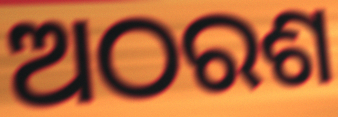
ଅଠରଶ